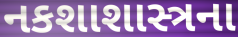
નકશાશાસ્ત્રના